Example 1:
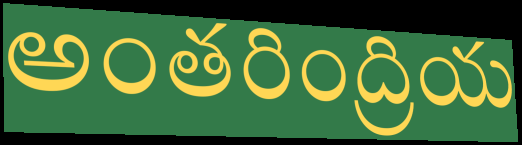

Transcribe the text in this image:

అంతరింద్రియ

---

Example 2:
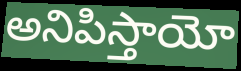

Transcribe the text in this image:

అనిపిస్తాయో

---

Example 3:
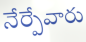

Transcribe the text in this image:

నేర్పేవారు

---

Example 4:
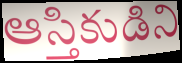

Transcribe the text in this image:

ఆస్తికుడిని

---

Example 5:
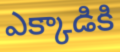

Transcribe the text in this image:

ఎక్కాడికి